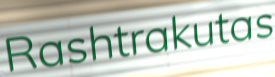
Rashtrakutas